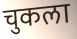
चुकला